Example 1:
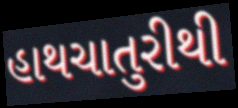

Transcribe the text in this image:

હાથચાતુરીથી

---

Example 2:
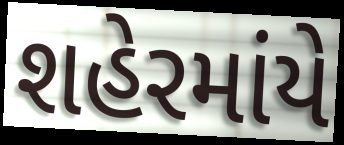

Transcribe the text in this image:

શહેરમાંયે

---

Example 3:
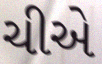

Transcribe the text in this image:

ચીએ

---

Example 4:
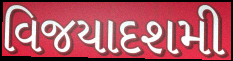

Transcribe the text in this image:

વિજયાદશમી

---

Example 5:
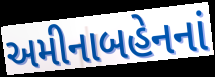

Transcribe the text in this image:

અમીનાબહેનનાં